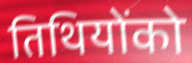
तिथियोंको